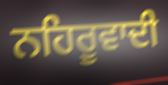
ਨਹਿਰੂਵਾਦੀ